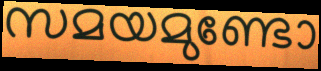
സമയമുണ്ടോ